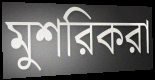
মুশরিকরা